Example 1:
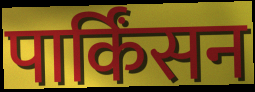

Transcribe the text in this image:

पार्किंसन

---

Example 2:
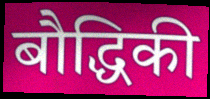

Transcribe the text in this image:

बौद्धिकी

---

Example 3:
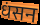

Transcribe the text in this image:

धंसन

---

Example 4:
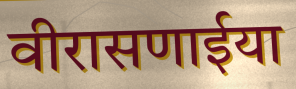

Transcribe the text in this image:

वीरासणाईया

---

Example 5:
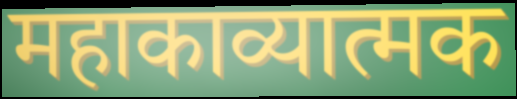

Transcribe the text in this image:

महाकाव्यात्मक